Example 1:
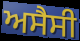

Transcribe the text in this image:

ਅਸੈਸੀ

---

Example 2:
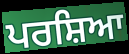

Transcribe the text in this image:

ਪਰਸ਼ਿਆ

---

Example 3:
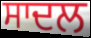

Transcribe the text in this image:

ਸਾਦਲ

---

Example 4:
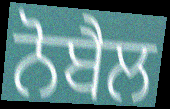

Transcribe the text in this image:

ਨੋਬੈਲ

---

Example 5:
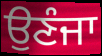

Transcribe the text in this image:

ਉਣੰਜਾ